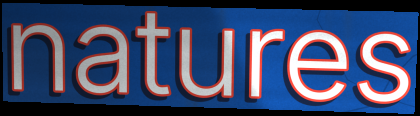
natures